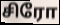
சிரோ